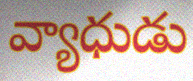
వ్యాధుడు